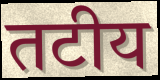
तटीय